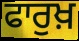
ਫਾਰੁਖ਼